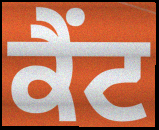
ਕੈਂਟ